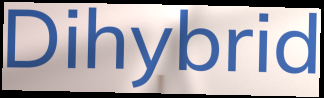
Dihybrid